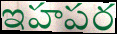
ఇహపర